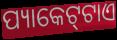
ପ୍ୟାକେଟ୍‌ଟାଏ